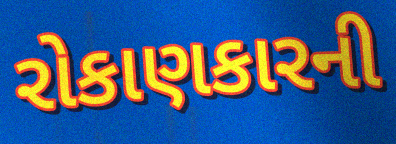
રોકાણકારની